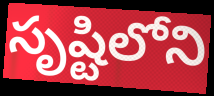
సృష్టిలోని